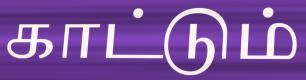
காட்டும்